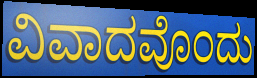
ವಿವಾದವೊಂದು